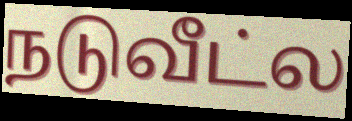
நடுவீட்ல